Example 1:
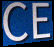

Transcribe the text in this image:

CE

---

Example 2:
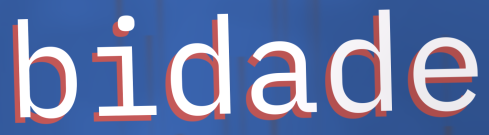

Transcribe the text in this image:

bidade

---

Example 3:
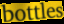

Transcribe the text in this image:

bottles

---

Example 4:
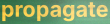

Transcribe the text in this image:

propagate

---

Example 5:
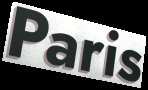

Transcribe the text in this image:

Paris